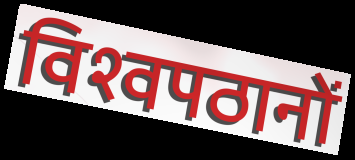
विश्वपठानों